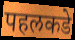
पहलकडे